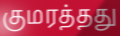
குமரத்தது